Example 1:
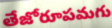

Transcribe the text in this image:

తేజోరూపమగు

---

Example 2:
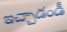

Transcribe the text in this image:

ఇచ్చాడండీ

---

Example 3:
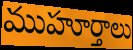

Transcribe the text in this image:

ముహూర్తాలు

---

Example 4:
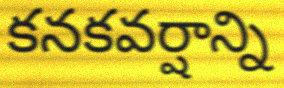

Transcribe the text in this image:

కనకవర్షాన్ని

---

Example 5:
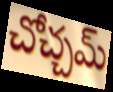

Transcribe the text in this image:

చోచ్చమ్